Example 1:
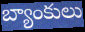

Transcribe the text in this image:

బ్యాంకులు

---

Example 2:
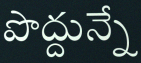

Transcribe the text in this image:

పొద్దున్నే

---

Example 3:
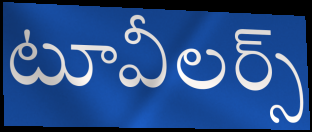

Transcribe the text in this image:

టూవీలర్స్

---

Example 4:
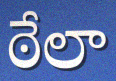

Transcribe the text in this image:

ఠేలా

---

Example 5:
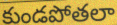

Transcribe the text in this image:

కుండపోతలా